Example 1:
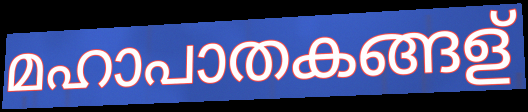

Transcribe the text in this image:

മഹാപാതകങ്ങള്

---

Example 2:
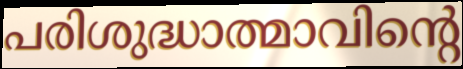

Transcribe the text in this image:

പരിശുദ്ധാത്മാവിന്റെ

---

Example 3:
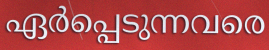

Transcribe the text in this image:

ഏർപ്പെടുന്നവരെ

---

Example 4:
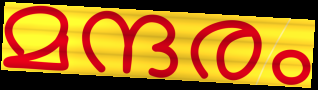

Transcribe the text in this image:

മന്ദരം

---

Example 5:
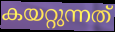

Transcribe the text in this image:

കയറ്റുന്നത്